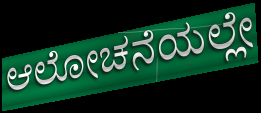
ಆಲೋಚನೆಯಲ್ಲೇ